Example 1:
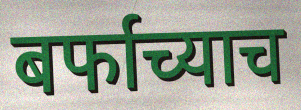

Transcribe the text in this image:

बर्फाच्याच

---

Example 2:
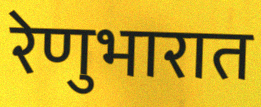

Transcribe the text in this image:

रेणुभारात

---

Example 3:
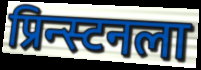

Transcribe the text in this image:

प्रिन्स्टनला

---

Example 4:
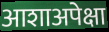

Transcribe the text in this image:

आशाअपेक्षा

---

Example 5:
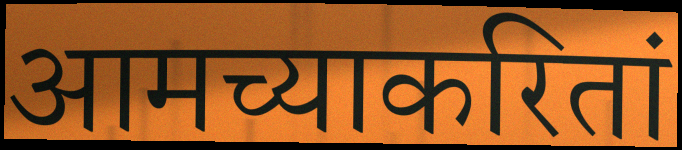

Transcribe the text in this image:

आमच्याकरितां